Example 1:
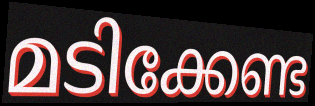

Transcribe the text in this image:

മടിക്കേണ്ട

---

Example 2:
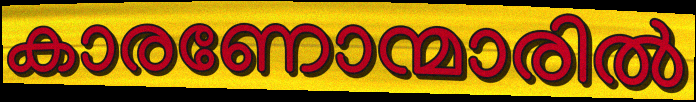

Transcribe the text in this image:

കാരണോന്മാരിൽ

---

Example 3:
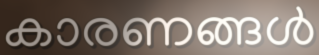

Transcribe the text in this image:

കാരണങ്ങൾ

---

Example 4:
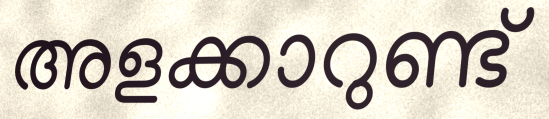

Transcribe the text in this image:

അളക്കാറുണ്ട്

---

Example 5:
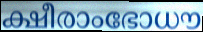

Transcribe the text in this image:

ക്ഷീരാംഭോധൗ